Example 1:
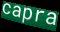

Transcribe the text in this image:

capra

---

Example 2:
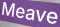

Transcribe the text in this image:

Meave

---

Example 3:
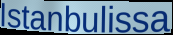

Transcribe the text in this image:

Istanbulissa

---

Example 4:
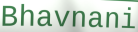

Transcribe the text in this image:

Bhavnani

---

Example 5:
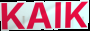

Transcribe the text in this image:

KAIK